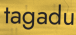
tagadu